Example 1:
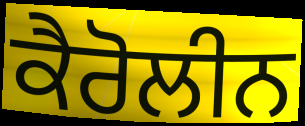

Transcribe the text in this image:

ਕੈਰੋਲੀਨ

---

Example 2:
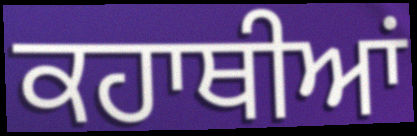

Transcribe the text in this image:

ਕਹਾਥੀਆਂ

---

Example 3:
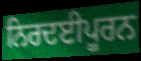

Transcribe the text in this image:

ਨਿਰਦਈਪੂਰਨ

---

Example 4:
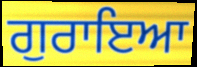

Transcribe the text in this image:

ਗੁਰਾਇਆ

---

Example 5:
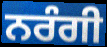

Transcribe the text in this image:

ਨਰੰਗੀ